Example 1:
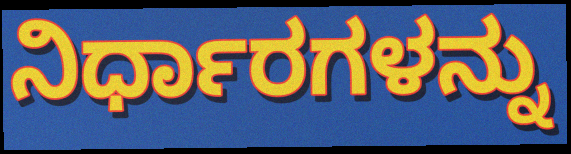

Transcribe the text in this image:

ನಿರ್ಧಾರಗಳನ್ನು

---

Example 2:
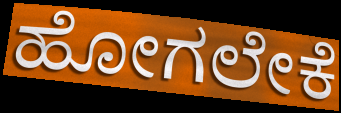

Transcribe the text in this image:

ಹೋಗಲೇಕೆ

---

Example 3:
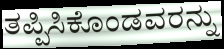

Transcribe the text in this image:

ತಪ್ಪಿಸಿಕೊಂಡವರನ್ನು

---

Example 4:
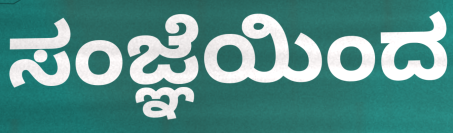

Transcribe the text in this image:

ಸಂಜ್ಞೆಯಿಂದ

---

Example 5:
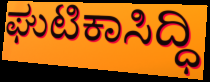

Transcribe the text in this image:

ಘುಟಿಕಾಸಿದ್ಧಿ